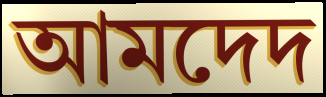
আমদেদ